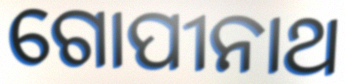
ଗୋପୀନାଥ